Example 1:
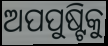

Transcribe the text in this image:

ଅପପୁଷ୍ଟିକୁ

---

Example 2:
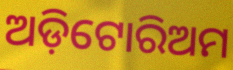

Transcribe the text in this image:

ଅଡ଼ିଟୋରିଅମ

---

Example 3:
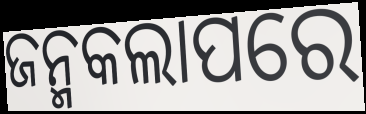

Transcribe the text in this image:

ଜନ୍ମକଲାପରେ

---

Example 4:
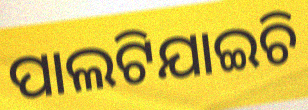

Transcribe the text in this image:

ପାଲଟିଯାଇଚି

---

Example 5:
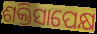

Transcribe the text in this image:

ଶକ୍ତିସାପେକ୍ଷ